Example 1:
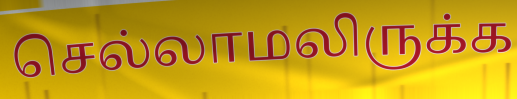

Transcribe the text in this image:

செல்லாமலிருக்க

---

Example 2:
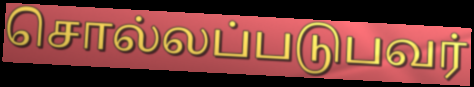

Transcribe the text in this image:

சொல்லப்படுபவர்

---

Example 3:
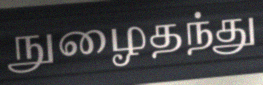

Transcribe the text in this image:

நுழைதந்து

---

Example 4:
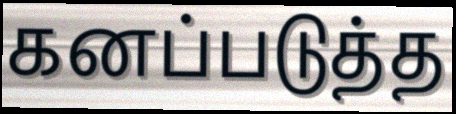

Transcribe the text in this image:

கனப்படுத்த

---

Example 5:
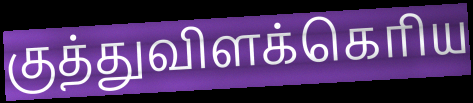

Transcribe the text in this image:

குத்துவிளக்கெரிய